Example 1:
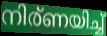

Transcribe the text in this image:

നിര്ണയിച്ച്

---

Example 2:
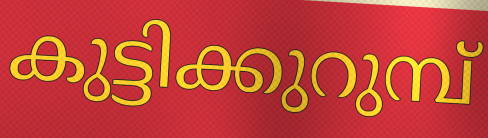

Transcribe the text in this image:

കുട്ടിക്കുറുമ്പ്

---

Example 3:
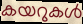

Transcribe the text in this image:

കയറുകൾ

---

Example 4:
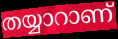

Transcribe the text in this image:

തയ്യാറാണ്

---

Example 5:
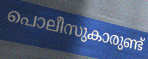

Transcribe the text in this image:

പൊലീസുകാരുണ്ട്